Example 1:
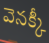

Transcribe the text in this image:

వెనక్కీ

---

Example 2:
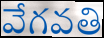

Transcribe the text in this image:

వేగవతి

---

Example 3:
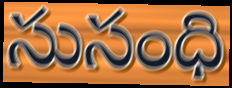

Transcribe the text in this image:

సుసంధి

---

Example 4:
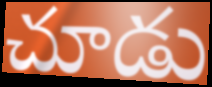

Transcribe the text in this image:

చూడు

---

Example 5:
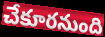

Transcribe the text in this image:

చేకూరనుంది